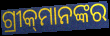
ଗ୍ରୀକ୍‌ମାନଙ୍କର